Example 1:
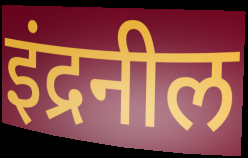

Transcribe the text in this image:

इंद्रनील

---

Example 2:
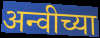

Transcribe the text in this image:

अन्वीच्या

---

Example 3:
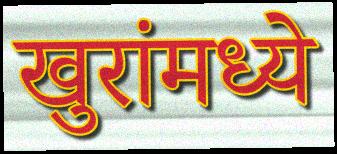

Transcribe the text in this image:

खुरांमध्ये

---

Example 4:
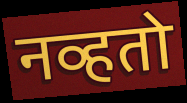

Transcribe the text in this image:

नव्हतो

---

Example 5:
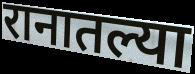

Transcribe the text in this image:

रानातल्या